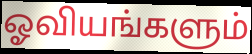
ஓவியங்களும்